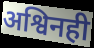
अश्विनही